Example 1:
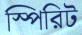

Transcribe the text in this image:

স্পিরিট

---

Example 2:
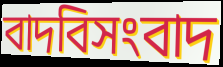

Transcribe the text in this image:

বাদবিসংবাদ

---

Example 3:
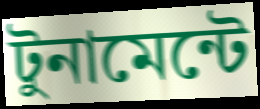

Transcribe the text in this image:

টুনামেন্টে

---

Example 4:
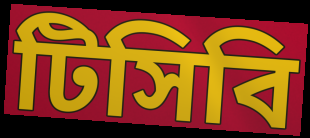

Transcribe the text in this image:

টিসিবি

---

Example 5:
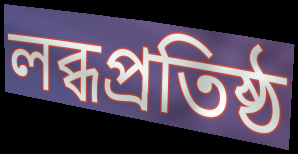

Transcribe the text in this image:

লব্ধপ্রতিষ্ঠ